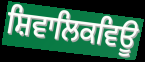
ਸ਼ਿਵਾਲਿਕਵਿਊ